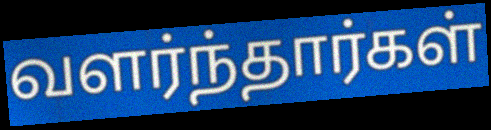
வளர்ந்தார்கள்